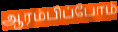
ஆரம்பிப்போம்